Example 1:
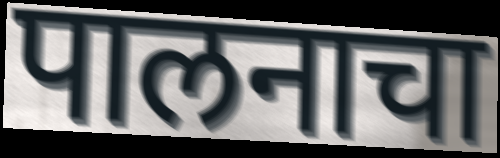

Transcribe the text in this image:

पालनाचा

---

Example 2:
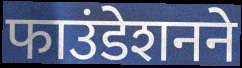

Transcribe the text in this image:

फाउंडेशनने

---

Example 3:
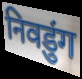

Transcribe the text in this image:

निवडुंग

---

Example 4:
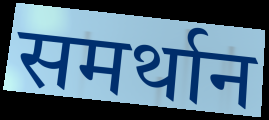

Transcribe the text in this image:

समर्थान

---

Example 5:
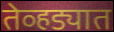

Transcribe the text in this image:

तेव्हड्यात